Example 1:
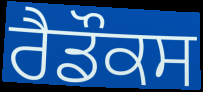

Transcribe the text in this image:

ਰੈਡੌਕਸ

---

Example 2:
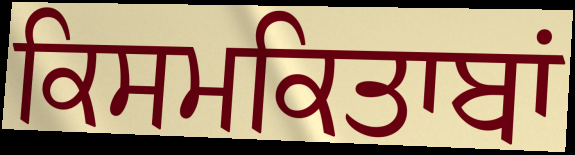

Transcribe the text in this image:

ਕਿਸਮਕਿਤਾਬਾਂ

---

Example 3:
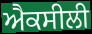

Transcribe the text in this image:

ਐਕਸੀਲੀ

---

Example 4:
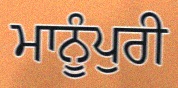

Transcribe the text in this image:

ਮਾਨੂੰਪੁਰੀ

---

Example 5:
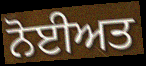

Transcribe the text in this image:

ਨੋਈਅਤ